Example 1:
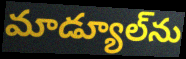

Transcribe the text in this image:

మాడ్యూల్‌ను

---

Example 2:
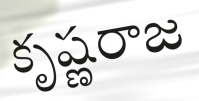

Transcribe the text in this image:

కృష్ణరాజ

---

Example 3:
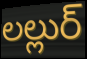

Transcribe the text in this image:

లల్లుర్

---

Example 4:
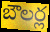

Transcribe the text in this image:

బౌలర్ల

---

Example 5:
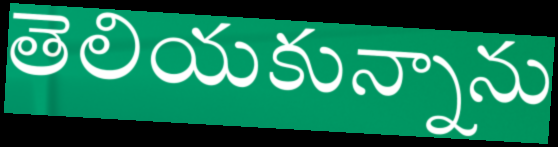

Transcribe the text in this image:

తెలియకున్నాను